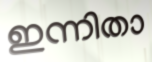
ഇന്നിതാ